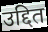
उद्दित